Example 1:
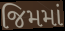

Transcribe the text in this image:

જિમમાં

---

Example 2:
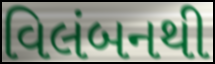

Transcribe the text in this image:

વિલંબનથી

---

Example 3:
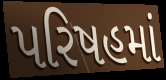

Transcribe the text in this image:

પરિષહમાં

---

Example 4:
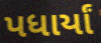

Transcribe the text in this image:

પધાર્યાં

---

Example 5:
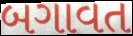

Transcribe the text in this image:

બગાવત